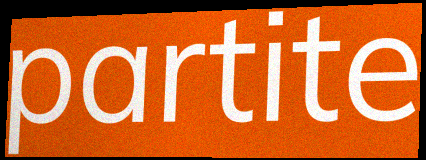
partite